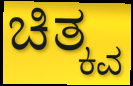
ಚಿತ್ಕ್ವ